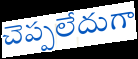
చెప్పలేదుగా